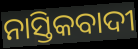
ନାସ୍ତିକବାଦୀ